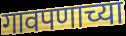
गावपणाच्या